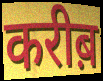
करीब़